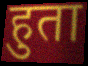
हुता